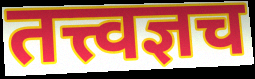
तत्त्वज्ञच